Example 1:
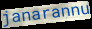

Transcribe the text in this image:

janarannu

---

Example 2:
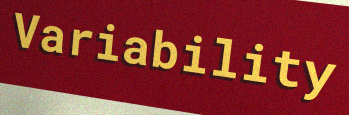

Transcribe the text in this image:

Variability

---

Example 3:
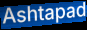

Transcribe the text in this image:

Ashtapad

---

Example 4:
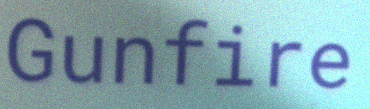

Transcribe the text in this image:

Gunfire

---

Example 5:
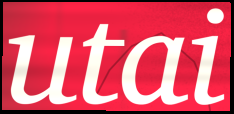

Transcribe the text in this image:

utai